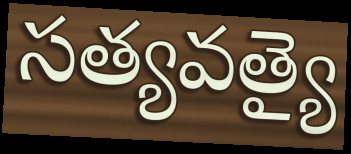
సత్యవత్యై